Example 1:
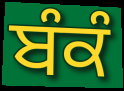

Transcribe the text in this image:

ਬੰਕੰ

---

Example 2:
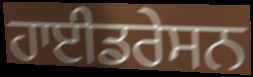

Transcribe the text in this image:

ਹਾਈਡਰੇਸਨ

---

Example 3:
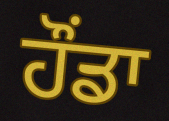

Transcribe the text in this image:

ਹੌਂਡਾ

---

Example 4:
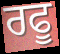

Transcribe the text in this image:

ਰਫੂ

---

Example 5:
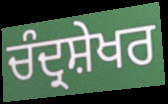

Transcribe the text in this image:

ਚੰਦ੍ਰਸ਼ੇਖਰ